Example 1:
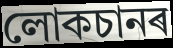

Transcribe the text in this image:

লোকচানৰ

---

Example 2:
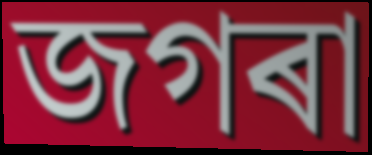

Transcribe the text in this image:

জগৰা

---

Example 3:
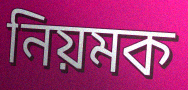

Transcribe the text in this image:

নিয়মক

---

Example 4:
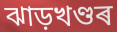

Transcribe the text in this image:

ঝাড়খণ্ডৰ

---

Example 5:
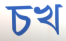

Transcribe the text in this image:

চখ